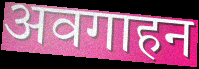
अवगाहन